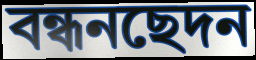
বন্ধনছেদন